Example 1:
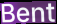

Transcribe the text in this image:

Bent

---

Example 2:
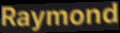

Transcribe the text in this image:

Raymond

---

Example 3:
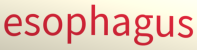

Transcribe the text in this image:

esophagus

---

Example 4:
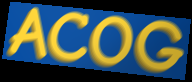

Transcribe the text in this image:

ACOG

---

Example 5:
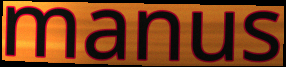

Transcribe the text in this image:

manus